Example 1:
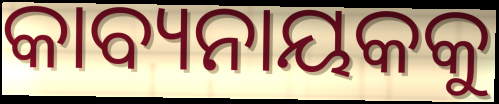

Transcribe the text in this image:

କାବ୍ୟନାୟକକୁ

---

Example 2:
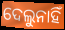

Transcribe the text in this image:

ଦେଲୁନାହିଁ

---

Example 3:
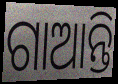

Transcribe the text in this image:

ଗାଆନ୍ତି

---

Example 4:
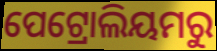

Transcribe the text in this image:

ପେଟ୍ରୋଲିୟମରୁ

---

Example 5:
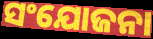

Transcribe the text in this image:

ସଂଯୋଜନା